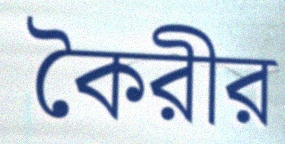
কৈরীর